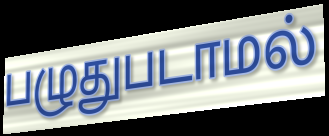
பழுதுபடாமல்